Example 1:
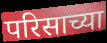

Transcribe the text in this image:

परिसाच्या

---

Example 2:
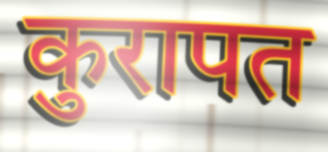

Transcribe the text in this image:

कुरापत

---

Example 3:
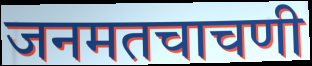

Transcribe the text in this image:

जनमतचाचणी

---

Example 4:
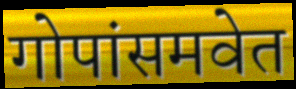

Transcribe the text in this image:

गोपांसमवेत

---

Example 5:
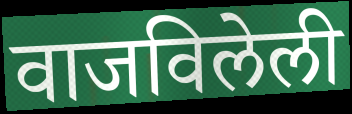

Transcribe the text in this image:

वाजविलेली